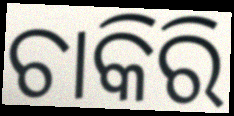
ଚାକିରି